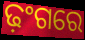
ଢ଼ଂଗରେ